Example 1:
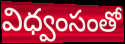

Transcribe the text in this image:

విధ్వంసంతో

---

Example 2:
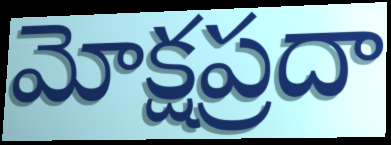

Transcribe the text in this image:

మోక్షప్రదా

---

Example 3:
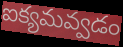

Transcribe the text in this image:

ఐక్యమవ్వడం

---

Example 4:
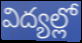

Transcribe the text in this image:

విద్యల్లో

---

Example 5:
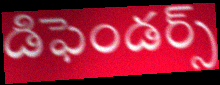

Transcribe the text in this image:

డిఫెండర్స్